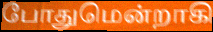
போதுமென்றாகி